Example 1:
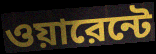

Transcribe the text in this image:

ওয়ারেন্টে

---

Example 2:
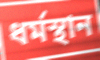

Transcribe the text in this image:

ধর্মস্থান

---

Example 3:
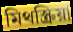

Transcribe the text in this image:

মিথস্ক্রিয়া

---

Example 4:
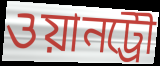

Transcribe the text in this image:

ওয়ানট্রৌ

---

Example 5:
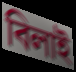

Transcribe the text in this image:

বিলাই